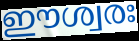
ഈശ്വരഃ